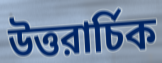
উত্তরার্চিক